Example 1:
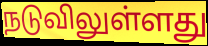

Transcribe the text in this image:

நடுவிலுள்ளது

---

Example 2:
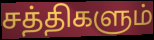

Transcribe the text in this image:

சத்திகளும்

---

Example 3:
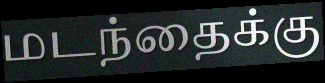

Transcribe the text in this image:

மடந்தைக்கு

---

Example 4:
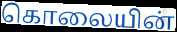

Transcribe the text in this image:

கொலையின்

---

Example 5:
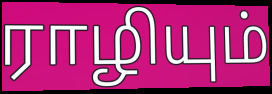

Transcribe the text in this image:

ராழியும்